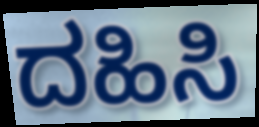
ದಹಿಸಿ